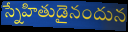
స్నేహితుడైనందున